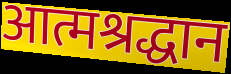
आत्मश्रद्धान